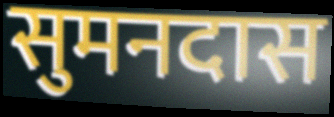
सुमनदास